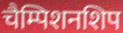
चैम्पिशनशिप